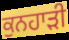
ਕੁਨਹਾੜੀ